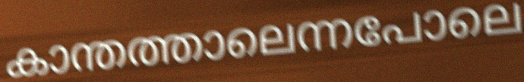
കാന്തത്താലെന്നപോലെ